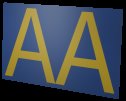
AA